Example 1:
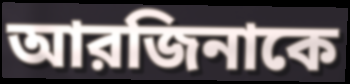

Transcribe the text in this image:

আরজিনাকে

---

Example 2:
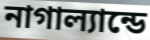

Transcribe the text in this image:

নাগাল্যান্ডে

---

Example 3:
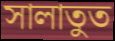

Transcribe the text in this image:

সালাতুত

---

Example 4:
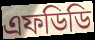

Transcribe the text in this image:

এফডিডি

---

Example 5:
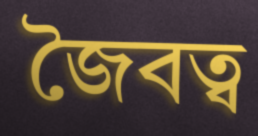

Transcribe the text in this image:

জৈবত্ব